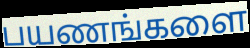
பயணங்களை